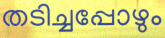
തടിച്ചപ്പോഴും